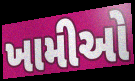
ખામીઓ